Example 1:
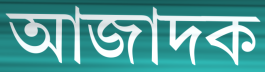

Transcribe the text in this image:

আজাদক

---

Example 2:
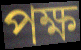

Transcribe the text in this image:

পক্ষ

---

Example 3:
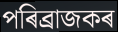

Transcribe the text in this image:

পৰিব্ৰাজকৰ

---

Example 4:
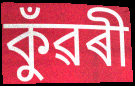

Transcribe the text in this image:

কুঁৱৰী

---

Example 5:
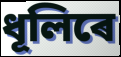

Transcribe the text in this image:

ধূলিৰে